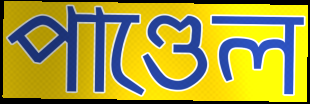
পাণ্ডেল